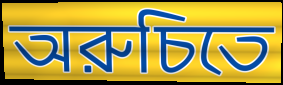
অরুচিতে